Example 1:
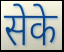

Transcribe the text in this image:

सेके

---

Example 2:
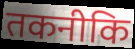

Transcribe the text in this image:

तकनीकि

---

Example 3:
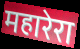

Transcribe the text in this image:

महारेरा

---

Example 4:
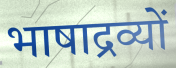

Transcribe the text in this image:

भाषाद्रव्यों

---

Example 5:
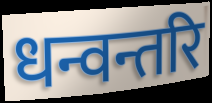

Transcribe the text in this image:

धन्वन्तरि